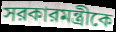
সরকারমন্ত্রীকে